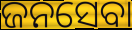
ଜନସେବା